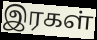
இரகள்